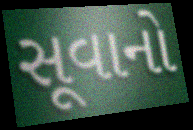
સૂવાનો